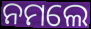
ନମଲେ